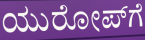
ಯುರೋಪ್‌ಗೆ